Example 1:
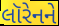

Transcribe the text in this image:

લૉરેનને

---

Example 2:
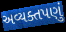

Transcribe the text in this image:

અવ્યક્તપણું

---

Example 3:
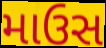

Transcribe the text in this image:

માઉસ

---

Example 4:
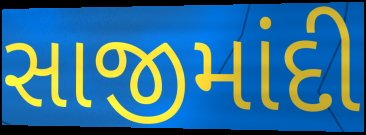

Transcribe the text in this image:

સાજીમાંદી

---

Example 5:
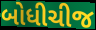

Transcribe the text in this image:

બોધીચીજ